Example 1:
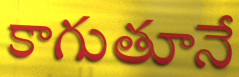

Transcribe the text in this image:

కాగుతూనే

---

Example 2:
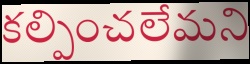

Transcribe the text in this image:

కల్పించలేమని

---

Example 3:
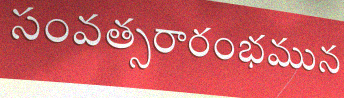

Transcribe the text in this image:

సంవత్సరారంభమున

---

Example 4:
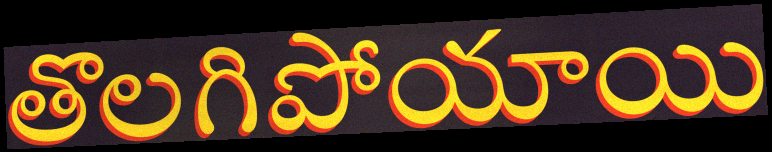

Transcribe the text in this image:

తొలగిపోయాయి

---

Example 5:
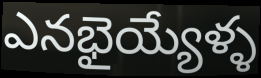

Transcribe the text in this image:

ఎనభైయ్యేళ్ళ